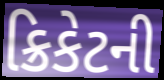
ક્રિકેટની